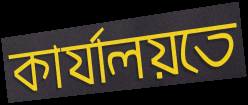
কাৰ্যালয়তে